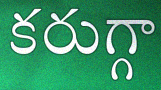
కరుగ్గా